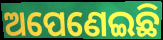
ଅପେଣେଇଛି